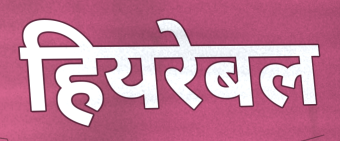
हियरेबल